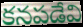
కనపడేవి